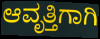
ಆವೃತ್ತಿಗಾಗಿ